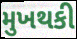
મુખથકી